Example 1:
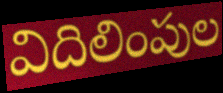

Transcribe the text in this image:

విదిలింపుల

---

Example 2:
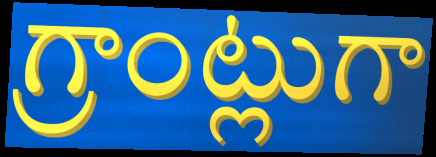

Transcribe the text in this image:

గ్రాంట్లుగా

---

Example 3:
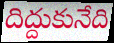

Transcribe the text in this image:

దిద్దుకునేది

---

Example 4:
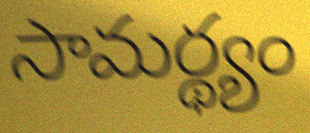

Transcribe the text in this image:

సామర్థ్యం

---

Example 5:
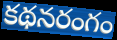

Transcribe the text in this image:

కథనరంగం